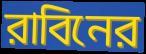
রাবিনের